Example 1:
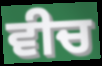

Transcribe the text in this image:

ਵੀਚ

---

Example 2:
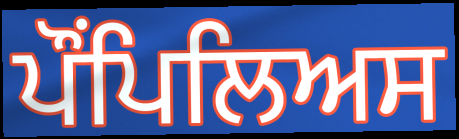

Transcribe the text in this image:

ਪੌਂਪਿਲਿਅਸ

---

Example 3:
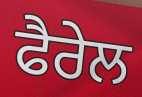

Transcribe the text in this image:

ਫੈਰੇਲ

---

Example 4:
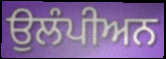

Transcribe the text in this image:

ਉੁਲੰਪੀਅਨ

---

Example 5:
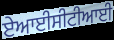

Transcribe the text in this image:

ਏਆਈਸੀਟੀਆਈ